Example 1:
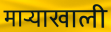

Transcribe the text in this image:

माऱ्याखाली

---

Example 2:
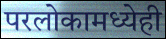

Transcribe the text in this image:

परलोकामध्येही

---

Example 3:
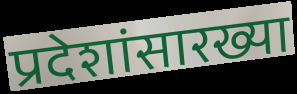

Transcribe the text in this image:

प्रदेशांसारख्या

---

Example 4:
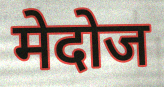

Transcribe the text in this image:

मेदोज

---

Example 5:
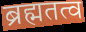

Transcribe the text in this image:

ब्रह्मतत्व